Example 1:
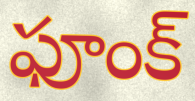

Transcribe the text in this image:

ఫూంక్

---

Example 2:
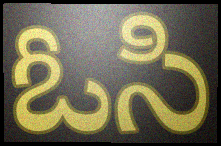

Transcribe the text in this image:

ఓసి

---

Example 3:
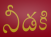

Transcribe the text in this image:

నీడకి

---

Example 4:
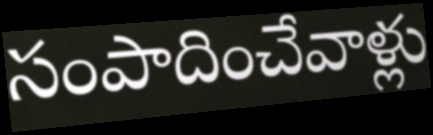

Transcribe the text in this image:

సంపాదించేవాళ్లు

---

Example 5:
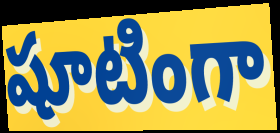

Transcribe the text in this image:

షూటింగా